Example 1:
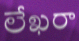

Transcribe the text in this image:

లేఖరా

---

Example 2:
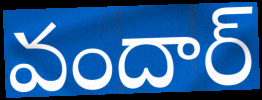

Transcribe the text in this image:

వందార్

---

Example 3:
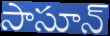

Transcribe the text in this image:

సాసూన్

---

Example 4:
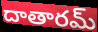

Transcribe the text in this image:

దాతారమ్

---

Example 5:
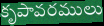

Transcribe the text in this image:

కృపావరములు